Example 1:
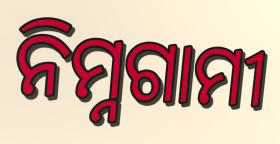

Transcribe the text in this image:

ନିମ୍ନଗାମୀ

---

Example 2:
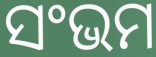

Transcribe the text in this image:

ସଂଭମ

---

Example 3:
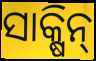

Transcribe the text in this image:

ସାକ୍ଷିନ୍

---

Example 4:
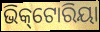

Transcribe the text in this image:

ଭିକ୍‌ଟୋରିୟା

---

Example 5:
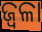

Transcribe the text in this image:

ଜ୍ୱଳା